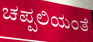
ಚಪ್ಪಲಿಯಂತೆ